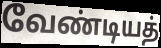
வேண்டியத்